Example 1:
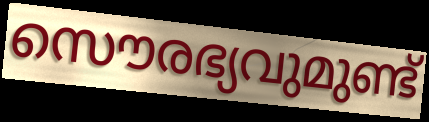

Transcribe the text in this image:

സൌരഭ്യവുമുണ്ട്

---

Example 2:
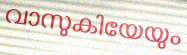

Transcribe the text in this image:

വാസുകിയേയും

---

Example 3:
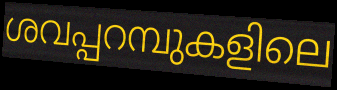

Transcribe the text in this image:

ശവപ്പറമ്പുകളിലെ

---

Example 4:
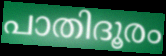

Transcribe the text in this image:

പാതിദൂരം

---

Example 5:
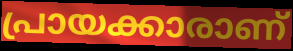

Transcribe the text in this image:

പ്രായക്കാരാണ്